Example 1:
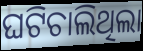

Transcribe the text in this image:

ଘଟିଚାଲିଥିଲା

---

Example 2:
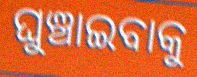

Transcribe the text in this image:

ଘୁଞ୍ଚାଇବାକୁ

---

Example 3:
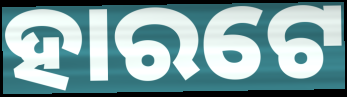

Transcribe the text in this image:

ହାରଟେ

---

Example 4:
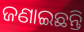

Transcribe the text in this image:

ଜଣାଇଛନ୍ତି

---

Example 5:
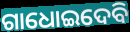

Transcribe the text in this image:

ଗାଧୋଇଦେବି